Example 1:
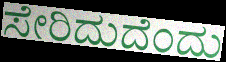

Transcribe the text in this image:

ಸೇರಿದುದೆಂದು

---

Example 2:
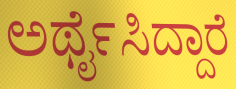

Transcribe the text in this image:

ಅರ್ಥೈಸಿದ್ದಾರೆ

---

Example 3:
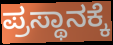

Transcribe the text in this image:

ಪ್ರಸ್ಥಾನಕ್ಕೆ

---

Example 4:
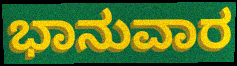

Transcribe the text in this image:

ಭಾನುವಾರ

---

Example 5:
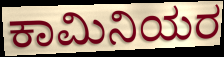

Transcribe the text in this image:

ಕಾಮಿನಿಯರ